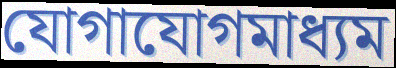
যোগাযোগমাধ্যম